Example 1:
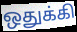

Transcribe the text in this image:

ஒதுக்கி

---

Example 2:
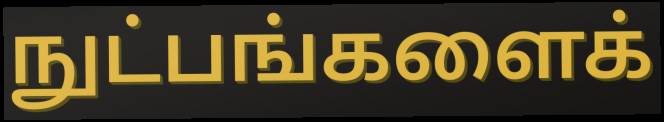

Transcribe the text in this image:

நுட்பங்களைக்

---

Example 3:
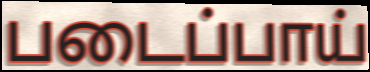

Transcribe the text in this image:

படைப்பாய்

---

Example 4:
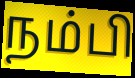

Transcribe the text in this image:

நம்பி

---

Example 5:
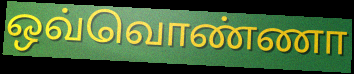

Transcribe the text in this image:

ஒவ்வொண்ணா